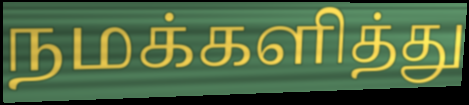
நமக்களித்து